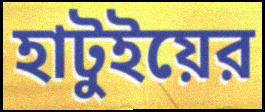
হাটুইয়ের